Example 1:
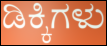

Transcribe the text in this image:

ಡಿಕ್ಕಿಗಳು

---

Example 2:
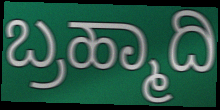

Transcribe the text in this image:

ಬ್ರಹ್ಮಾದಿ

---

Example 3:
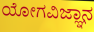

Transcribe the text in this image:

ಯೋಗವಿಜ್ಞಾನ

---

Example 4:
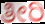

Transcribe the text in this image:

ತೀರಿ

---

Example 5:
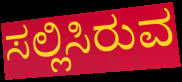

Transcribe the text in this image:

ಸಲ್ಲಿಸಿರುವ